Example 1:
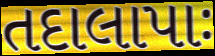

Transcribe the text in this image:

તદાલાપાઃ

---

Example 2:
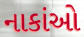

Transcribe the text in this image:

નાકાંઓ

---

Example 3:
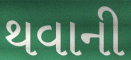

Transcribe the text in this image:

થવાની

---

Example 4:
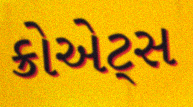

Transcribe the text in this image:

ક્રોએટ્સ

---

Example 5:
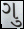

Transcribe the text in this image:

ગુ